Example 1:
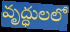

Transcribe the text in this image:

వృద్ధులలో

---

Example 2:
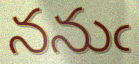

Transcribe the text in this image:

ననుఁ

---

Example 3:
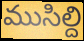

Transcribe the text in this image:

ముసిల్ది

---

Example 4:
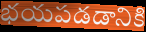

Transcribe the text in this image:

భయపడడానికి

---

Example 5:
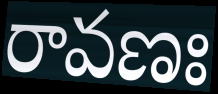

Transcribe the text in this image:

రావణః